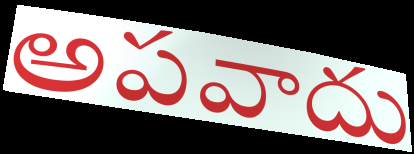
అపవాదు